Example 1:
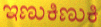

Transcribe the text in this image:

ಇಣುಕಿಣುಕಿ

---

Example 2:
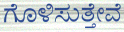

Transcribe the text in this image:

ಗೊಳಿಸುತ್ತೇವೆ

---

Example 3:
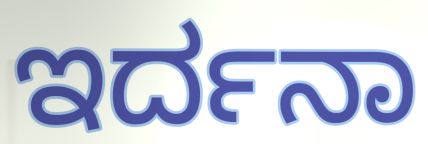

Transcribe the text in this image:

ಇರ್ದನಾ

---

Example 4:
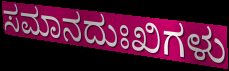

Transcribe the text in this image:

ಸಮಾನದುಃಖಿಗಳು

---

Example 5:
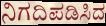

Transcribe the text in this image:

ನಿಗದಿಪಡಿಸಿದ